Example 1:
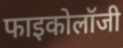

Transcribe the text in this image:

फाइकोलॉजी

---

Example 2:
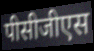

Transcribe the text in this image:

पीसीजीएस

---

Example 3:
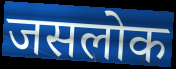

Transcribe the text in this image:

जसलोक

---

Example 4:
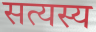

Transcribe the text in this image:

सत्यस्य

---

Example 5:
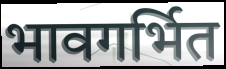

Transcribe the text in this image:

भावगर्भित